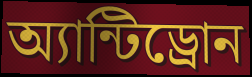
অ্যান্টিড্রোন